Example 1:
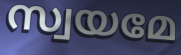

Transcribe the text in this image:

സ്വയമേ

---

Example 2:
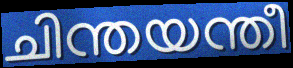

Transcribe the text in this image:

ചിന്തയന്തീ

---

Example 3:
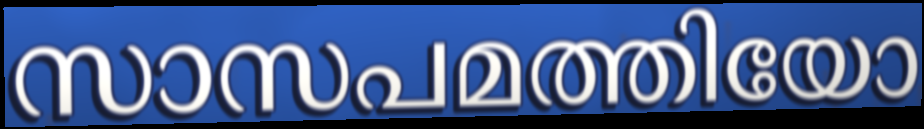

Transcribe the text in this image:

സാസപമത്തിയോ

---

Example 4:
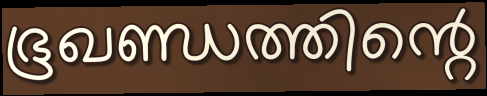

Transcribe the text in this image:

ഭൂഖണ്ഡത്തിന്റെ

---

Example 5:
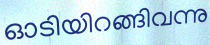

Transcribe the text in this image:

ഓടിയിറങ്ങിവന്നു